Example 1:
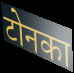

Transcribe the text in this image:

टोनका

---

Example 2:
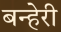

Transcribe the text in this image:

बन्हेरी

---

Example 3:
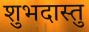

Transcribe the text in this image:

शुभदास्तु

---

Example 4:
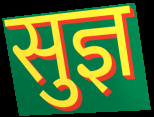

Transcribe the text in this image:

सुज्ञ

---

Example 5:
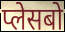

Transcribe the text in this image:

प्लेसबो